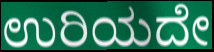
ಉರಿಯದೇ